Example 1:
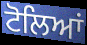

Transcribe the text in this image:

ਟੋਲਿਆਂ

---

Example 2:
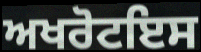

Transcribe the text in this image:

ਅਖਰੋਟਇਸ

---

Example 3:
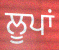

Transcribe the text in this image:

ਲੂਪਾਂ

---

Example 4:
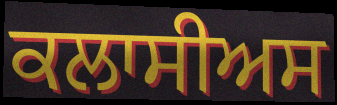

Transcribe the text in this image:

ਕਲਾਸੀਅਸ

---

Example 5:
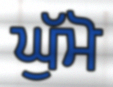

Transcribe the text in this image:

ਘੁੱਮੋ